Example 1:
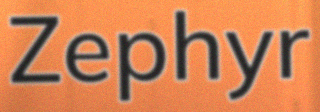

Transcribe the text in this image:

Zephyr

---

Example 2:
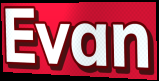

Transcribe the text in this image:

Evan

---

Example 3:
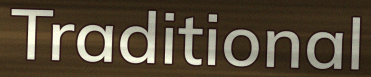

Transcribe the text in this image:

Traditional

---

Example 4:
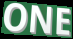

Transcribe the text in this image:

ONE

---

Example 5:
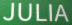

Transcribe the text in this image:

JULIA